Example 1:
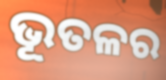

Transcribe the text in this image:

ଭୂତଳର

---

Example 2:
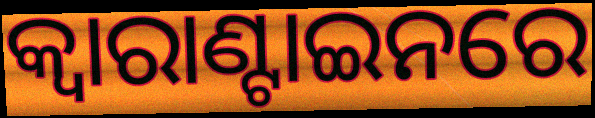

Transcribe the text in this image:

କ୍ବାରାଣ୍ଟାଇନରେ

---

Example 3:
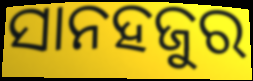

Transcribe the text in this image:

ସାନହଜୁର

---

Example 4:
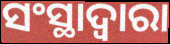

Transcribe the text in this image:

ସଂସ୍ଥାଦ୍ୱାରା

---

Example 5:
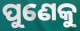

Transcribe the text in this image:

ପୁଣେକୁ